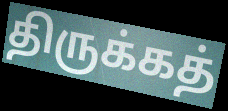
திருக்கத்